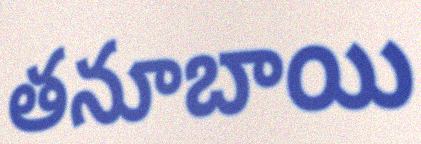
తనూబాయి